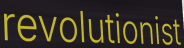
revolutionist